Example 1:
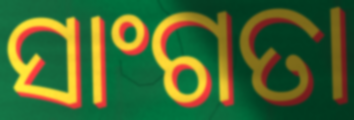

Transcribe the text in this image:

ସାଂଗତା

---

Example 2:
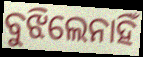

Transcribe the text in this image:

ବୁଝିଲେନାହିଁ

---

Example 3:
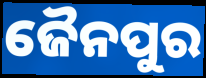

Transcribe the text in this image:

ଜୈନପୁର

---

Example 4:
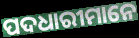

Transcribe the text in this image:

ପଦଧାରୀମାନେ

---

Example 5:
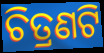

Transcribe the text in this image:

ଚିତ୍ରଣଟି